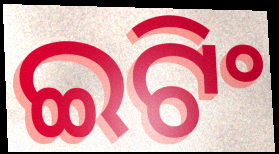
ଇଟିଂ